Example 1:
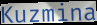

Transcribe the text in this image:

Kuzmina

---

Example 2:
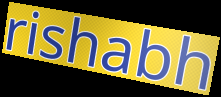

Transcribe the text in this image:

rishabh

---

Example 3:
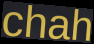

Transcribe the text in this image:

chah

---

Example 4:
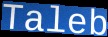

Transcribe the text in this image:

Taleb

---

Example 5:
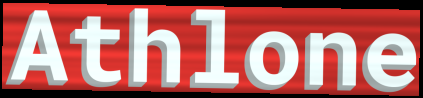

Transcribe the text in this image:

Athlone